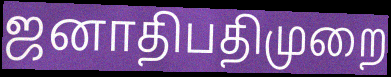
ஜனாதிபதிமுறை